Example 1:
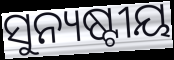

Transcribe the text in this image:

ସୁନ୍ୟଷ୍ଟୀୟ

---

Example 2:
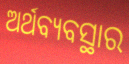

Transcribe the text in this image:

ଅର୍ଥବ୍ୟବସ୍ଥାର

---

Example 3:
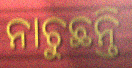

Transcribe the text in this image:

ନାଚୁଛନ୍ତି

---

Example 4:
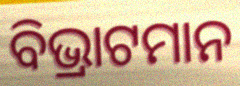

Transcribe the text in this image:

ବିଭ୍ରାଟମାନ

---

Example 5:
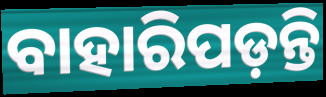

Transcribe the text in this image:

ବାହାରିପଡ଼ନ୍ତି